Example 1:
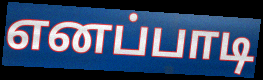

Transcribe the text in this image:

எனப்பாடி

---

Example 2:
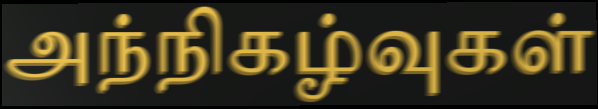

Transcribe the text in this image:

அந்நிகழ்வுகள்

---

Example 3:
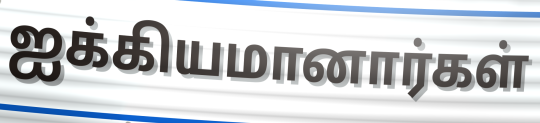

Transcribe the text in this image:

ஐக்கியமானார்கள்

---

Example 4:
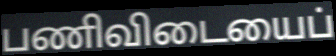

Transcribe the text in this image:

பணிவிடையைப்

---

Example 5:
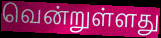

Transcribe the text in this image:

வென்றுள்ளது